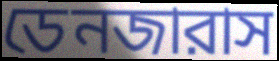
ডেনজারাস